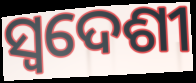
ସ୍ୱଦେଶୀ